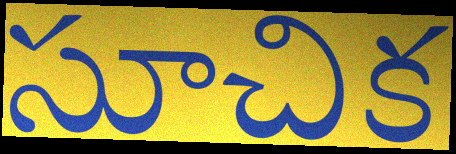
సూచిక